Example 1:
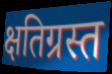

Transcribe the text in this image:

क्षतिग्रस्त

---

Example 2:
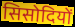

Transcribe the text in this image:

सिसोदियों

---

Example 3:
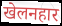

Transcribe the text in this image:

खेलनहार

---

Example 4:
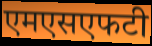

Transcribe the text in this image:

एमएसएफटी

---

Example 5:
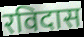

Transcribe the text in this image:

रविदास